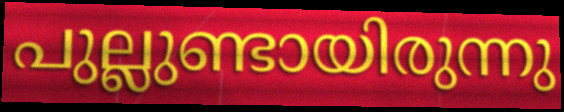
പുല്ലുണ്ടായിരുന്നു